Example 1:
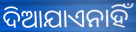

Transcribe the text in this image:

ଦିଆଯାଏନାହିଁ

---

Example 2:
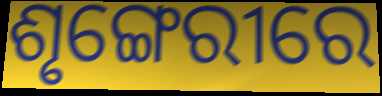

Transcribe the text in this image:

ଶୃଙ୍ଗେରୀରେ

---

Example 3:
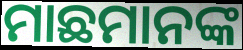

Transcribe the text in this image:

ମାଛମାନଙ୍କ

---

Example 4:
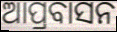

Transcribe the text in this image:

ଆପ୍ରବାସନ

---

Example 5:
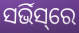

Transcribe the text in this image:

ସର୍ଭିସ୍‌ରେ